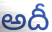
అదీ